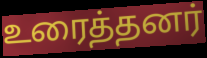
உரைத்தனர்